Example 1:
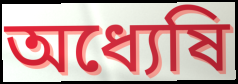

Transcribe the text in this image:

অধ্যেষি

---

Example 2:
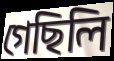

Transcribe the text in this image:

গেছিলি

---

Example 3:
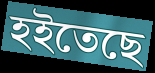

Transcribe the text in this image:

হইতেছে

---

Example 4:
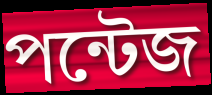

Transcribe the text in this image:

পন্টেজ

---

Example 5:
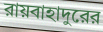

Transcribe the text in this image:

রায়বাহাদুরের